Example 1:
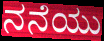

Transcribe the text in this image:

ನನೆಯು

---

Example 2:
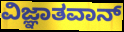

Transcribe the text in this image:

ವಿಜ್ಞಾತವಾನ್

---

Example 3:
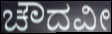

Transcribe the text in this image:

ಚೌದವೀ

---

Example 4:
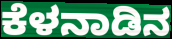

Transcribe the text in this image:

ಕೆಳನಾಡಿನ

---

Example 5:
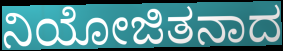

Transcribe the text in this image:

ನಿಯೋಜಿತನಾದ